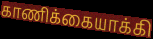
காணிக்கையாக்கி